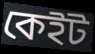
কেইট